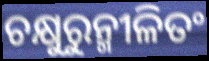
ଚକ୍ଷୁରୁନ୍ମୀଳିତଂ